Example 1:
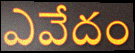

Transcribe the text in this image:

ఎవేదం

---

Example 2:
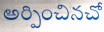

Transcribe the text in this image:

అర్పించినచో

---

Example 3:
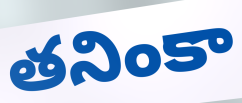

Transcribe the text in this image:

తనింకా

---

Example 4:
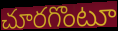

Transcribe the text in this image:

చూరగొంటూ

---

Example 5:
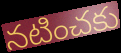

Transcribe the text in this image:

నటించకు